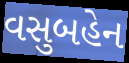
વસુબહેન